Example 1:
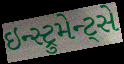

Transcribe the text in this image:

ઇન્સ્ટ્રુમેન્ટ્સે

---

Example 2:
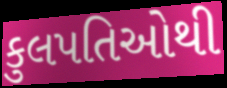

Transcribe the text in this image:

કુલપતિઓથી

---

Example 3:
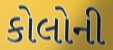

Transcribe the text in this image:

કોલોની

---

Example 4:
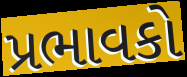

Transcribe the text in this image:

પ્રભાવકો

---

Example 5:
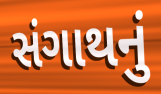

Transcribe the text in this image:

સંગાથનું